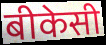
बीकेसी